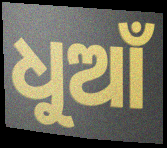
ଧୁଆଁ